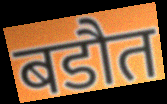
बडौत